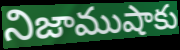
నిజాముషాకు